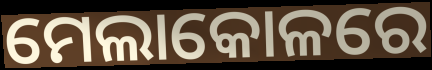
ମେଲାକୋଳରେ